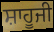
ਸ਼ਾਹੂਜੀ